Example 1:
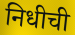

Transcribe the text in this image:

निधीची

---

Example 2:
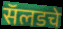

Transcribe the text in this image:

सॅलडचे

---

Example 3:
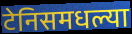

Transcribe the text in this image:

टेनिसमधल्या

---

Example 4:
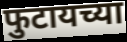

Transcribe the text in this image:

फुटायच्या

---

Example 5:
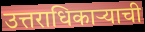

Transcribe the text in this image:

उत्तराधिकाऱ्याची